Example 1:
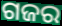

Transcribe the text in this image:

ଗଜର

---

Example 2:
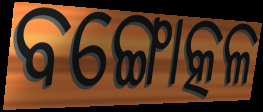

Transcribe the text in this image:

ବଙ୍ଗୋତ୍କଳ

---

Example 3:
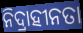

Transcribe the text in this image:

ନିଦ୍ରାହୀନତା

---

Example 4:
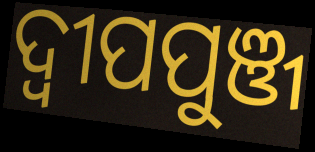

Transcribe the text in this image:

ଦ୍ୱୀପପୁଞ୍ଜ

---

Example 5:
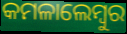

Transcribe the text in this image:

କମଳାଲେମ୍ବୁର